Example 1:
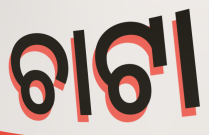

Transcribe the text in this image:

ଚାଟା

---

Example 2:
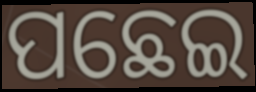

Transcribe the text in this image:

ପଛେଇ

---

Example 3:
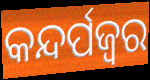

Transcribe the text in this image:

କନ୍ଦର୍ପଜ୍ବର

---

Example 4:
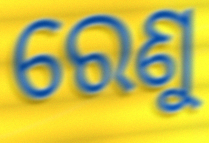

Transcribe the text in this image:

ରେଣୁ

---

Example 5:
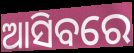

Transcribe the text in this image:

ଆସିବରେ